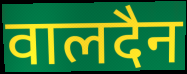
वालदैन